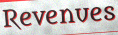
Revenues